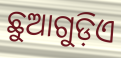
ଛୁଆଗୁଡ଼ିଏ